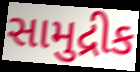
સામુદ્રીક